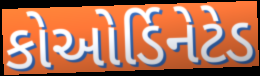
કોઓર્ડિનેટેડ